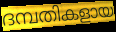
ദമ്പതികളായ